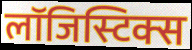
लॉजिस्टिक्स